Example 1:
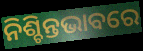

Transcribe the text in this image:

ନିଶ୍ଚିନ୍ତଭାବରେ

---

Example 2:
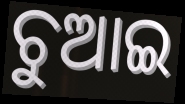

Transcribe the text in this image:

ଚୁଆଇ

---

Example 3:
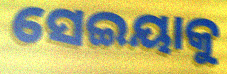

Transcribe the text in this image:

ସେଇୟାକୁ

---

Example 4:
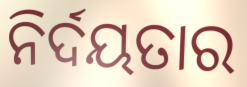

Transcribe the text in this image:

ନିର୍ଦୟତାର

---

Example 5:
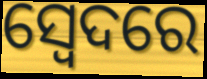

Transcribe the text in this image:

ସ୍ଵେଦରେ